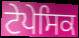
ਟੇਪੇਸਿਕ